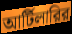
আর্টিলারির